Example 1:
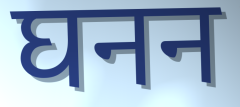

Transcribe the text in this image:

घनन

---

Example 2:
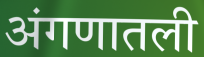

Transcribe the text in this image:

अंगणातली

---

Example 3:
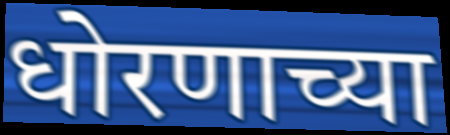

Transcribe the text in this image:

धोरणाच्या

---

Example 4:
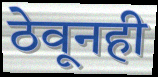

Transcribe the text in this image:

ठेवूनही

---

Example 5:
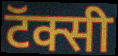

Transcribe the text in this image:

टॅक्सी